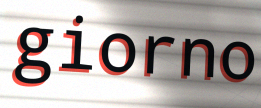
giorno